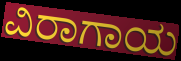
ವಿರಾಗಾಯ